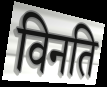
विनति